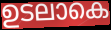
ഉടലാകെ